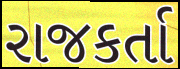
રાજકર્તા